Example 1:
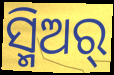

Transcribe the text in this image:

ସ୍ମିଅର୍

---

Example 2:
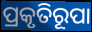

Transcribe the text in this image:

ପ୍ରକୃତିରୂପା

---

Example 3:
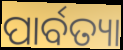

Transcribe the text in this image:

ପାର୍ବତ୍ୟା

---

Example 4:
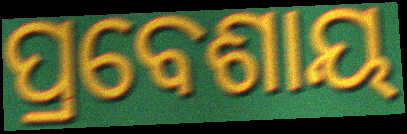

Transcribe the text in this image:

ପ୍ରବେଶାୟ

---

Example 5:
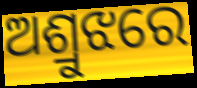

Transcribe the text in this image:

ଅଶ୍ରୁଝରେ